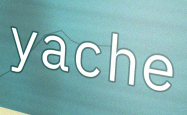
yache